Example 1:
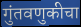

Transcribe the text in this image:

गुंतवणुकीचा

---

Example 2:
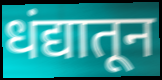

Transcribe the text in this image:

धंद्यातून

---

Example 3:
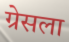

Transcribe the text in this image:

ग्रेसला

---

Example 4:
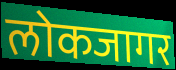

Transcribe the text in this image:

लोकजागर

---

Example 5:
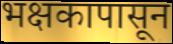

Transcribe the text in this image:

भक्षकापासून